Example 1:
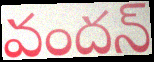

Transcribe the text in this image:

వందన్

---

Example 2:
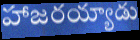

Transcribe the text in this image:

హాజరయ్యాడు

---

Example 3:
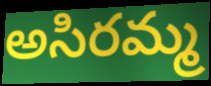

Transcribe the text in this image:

అసిరమ్మ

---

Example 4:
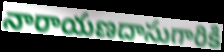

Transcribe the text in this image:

నారాయణదాసుగారికి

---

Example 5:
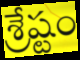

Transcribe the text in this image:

శ్రేష్టం